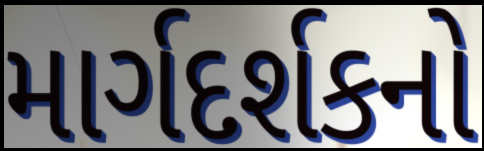
માર્ગદર્શકનો